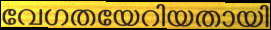
വേഗതയേറിയതായി